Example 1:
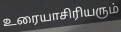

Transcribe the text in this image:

உரையாசிரியரும்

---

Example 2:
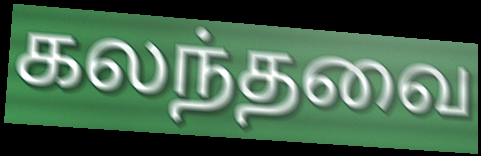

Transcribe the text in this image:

கலந்தவை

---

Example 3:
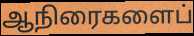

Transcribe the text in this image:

ஆநிரைகளைப்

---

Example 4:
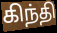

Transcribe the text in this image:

கிந்தி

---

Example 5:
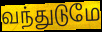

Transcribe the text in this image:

வந்துடுமே